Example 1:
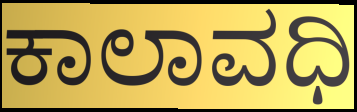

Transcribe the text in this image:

ಕಾಲಾವಧಿ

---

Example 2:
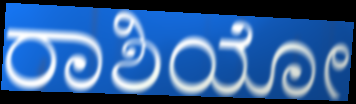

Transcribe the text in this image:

ರಾಶಿಯೋ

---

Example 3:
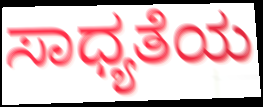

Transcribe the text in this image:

ಸಾಧ್ಯತೆಯ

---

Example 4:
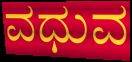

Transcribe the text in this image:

ವಧುವ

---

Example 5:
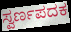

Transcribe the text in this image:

ಸ್ವರ್ಣಪದಕ